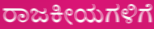
ರಾಜಕೀಯಗಳಿಗೆ